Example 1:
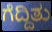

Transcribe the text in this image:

ಗೆದ್ದಿತು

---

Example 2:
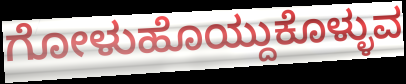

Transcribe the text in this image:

ಗೋಳುಹೊಯ್ದುಕೊಳ್ಳುವ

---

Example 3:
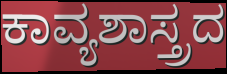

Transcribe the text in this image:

ಕಾವ್ಯಶಾಸ್ತ್ರದ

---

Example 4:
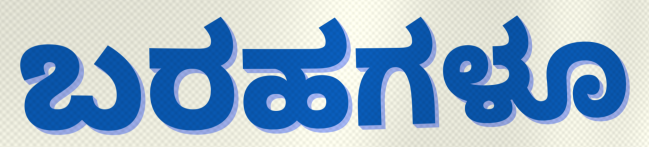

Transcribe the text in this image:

ಬರಹಗಳೂ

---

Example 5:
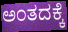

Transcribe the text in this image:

ಅಂತದಕ್ಕೆ